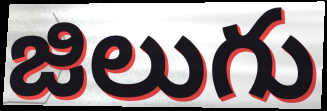
జిలుగు